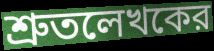
শ্রুতলেখকের